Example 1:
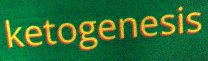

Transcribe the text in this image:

ketogenesis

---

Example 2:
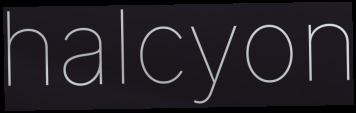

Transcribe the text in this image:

halcyon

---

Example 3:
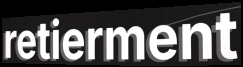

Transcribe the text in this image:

retierment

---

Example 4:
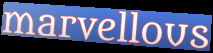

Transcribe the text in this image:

marvellous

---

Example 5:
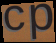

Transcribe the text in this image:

cp